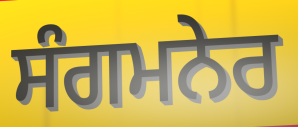
ਸੰਗਮਨੇਰ